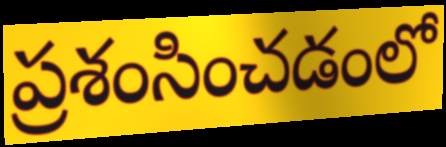
ప్రశంసించడంలో